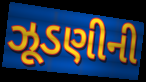
ઝૂડણીની